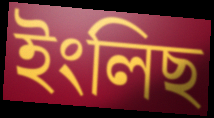
ইংলিছ